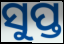
ସୁପ୍ତ